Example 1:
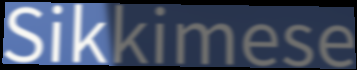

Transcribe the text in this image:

Sikkimese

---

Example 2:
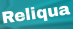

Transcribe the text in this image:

Reliqua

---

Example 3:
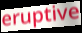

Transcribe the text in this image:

eruptive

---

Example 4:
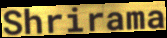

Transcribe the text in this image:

Shrirama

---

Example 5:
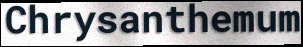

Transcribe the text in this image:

Chrysanthemum